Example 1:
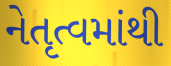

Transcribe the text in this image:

નેતૃત્વમાંથી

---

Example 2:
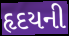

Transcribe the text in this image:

હૃદયની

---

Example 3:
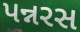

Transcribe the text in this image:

પન્નરસ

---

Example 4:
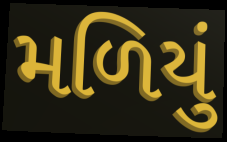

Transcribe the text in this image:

મળિયું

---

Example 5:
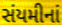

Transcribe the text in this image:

સંયમીનાં